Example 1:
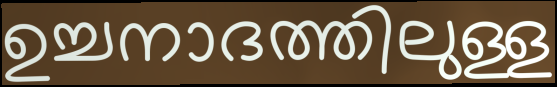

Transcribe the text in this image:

ഉച്ചനാദത്തിലുള്ള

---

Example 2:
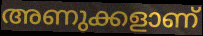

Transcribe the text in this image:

അണുക്കളാണ്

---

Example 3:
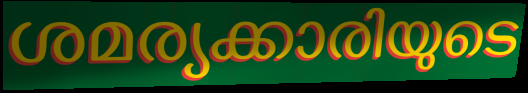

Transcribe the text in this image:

ശമര്യക്കാരിയുടെ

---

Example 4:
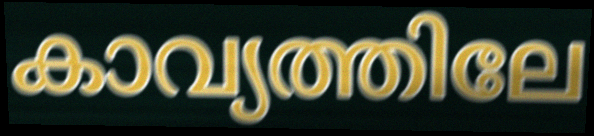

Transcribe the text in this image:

കാവ്യത്തിലേ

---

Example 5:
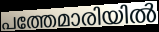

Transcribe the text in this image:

പത്തേമാരിയിൽ